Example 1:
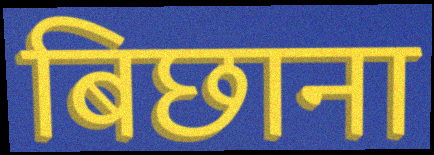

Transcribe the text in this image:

बिछाना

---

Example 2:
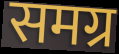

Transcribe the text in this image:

समग्र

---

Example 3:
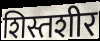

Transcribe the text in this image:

शिस्तशीर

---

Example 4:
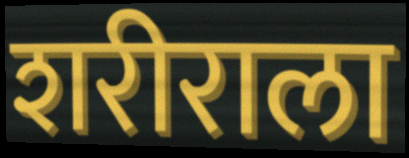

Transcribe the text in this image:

शरीराला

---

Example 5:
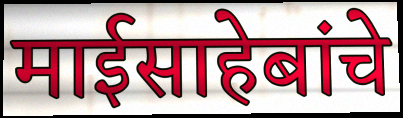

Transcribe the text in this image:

माईसाहेबांचे